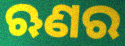
ଋଣର